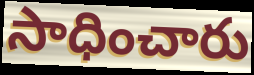
సాధించారు